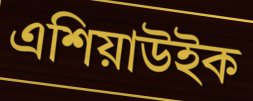
এশিয়াউইক